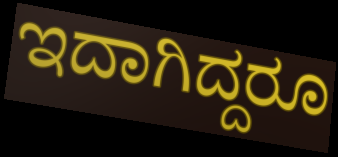
ಇದಾಗಿದ್ದರೂ